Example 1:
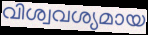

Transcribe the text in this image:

വിശ്വവശ്യമായ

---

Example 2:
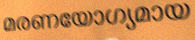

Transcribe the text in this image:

മരണയോഗ്യമായ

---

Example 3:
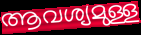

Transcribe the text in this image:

ആവശ്യമുള്ള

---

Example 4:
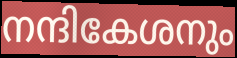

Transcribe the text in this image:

നന്ദികേശനും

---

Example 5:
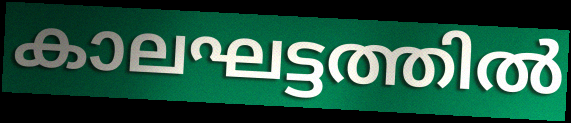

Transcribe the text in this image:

കാലഘട്ടത്തിൽ